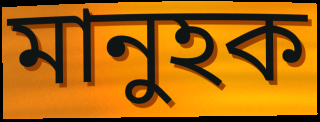
মানুহক